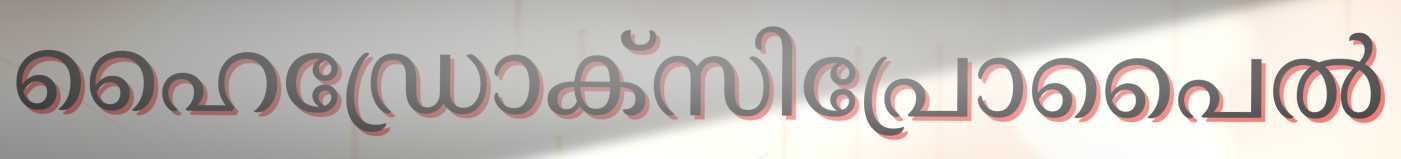
ഹൈഡ്രോക്സിപ്രോപൈൽ